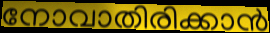
നോവാതിരിക്കാൻ